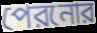
পেরনোর